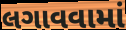
લગાવવામાં